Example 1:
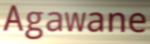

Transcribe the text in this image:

Agawane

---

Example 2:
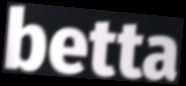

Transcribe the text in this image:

betta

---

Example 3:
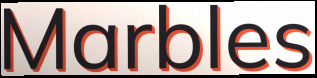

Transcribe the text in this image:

Marbles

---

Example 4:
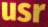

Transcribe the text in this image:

usr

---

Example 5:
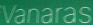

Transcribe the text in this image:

Vanaras